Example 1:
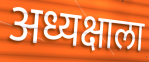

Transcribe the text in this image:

अध्यक्षाला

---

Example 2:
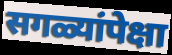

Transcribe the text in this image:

सगळ्यांपेक्षा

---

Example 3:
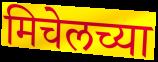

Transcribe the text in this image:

मिचेलच्या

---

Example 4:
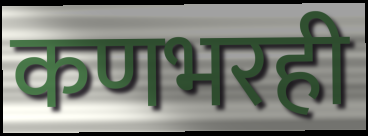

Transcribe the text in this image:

कणभरही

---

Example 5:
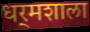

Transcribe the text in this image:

धर्मशाला